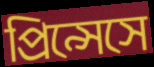
প্রিন্সেসে